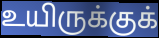
உயிருக்குக்